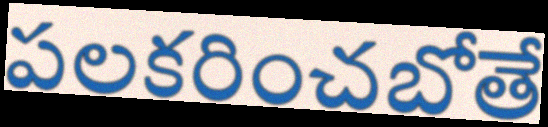
పలకరించబోతే